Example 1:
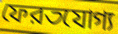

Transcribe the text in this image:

ফেরতযোগ্য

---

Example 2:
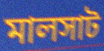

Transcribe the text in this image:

মালসাট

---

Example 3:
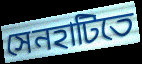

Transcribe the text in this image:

সেনহাটিতে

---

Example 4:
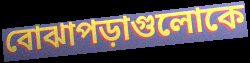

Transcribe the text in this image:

বোঝাপড়াগুলোকে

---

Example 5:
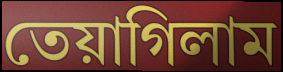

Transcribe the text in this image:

তেয়াগিলাম